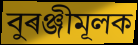
বুৰঞ্জীমূলক